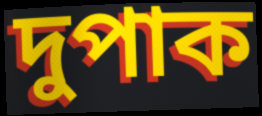
দুপাক